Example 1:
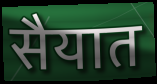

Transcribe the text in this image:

सैयात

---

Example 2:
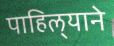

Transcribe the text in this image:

पाहिल्याने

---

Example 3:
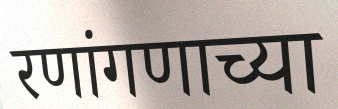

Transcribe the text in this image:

रणांगणाच्या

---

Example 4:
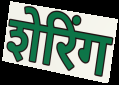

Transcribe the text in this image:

शेरिंग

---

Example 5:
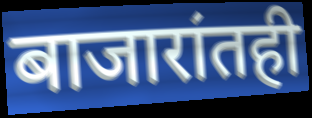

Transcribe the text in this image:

बाजारांतही